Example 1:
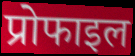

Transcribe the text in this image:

प्रोफाइल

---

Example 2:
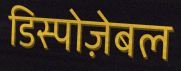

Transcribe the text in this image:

डिस्पोज़ेबल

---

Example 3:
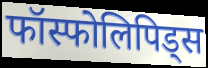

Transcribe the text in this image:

फॉस्फोलिपिड्स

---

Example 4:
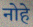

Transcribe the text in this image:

नोहे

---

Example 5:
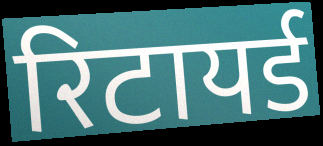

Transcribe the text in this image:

रिटायर्ड